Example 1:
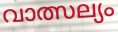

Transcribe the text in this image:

വാത്സല്യം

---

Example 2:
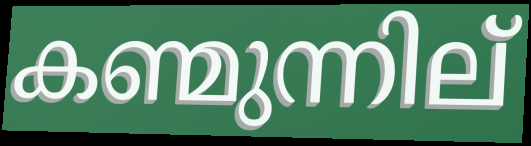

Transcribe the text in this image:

കണ്മുന്നില്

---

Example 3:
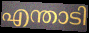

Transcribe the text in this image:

എന്താടി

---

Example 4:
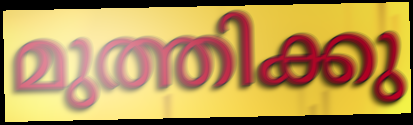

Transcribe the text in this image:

മുത്തിക്കു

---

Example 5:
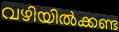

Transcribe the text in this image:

വഴിയിൽക്കണ്ട